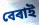
বেৰাই